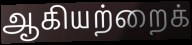
ஆகியற்றைக்